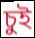
চুই